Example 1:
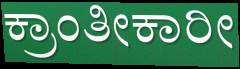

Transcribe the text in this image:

ಕ್ರಾಂತೀಕಾರೀ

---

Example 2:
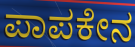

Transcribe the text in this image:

ಪಾಪಕೇನ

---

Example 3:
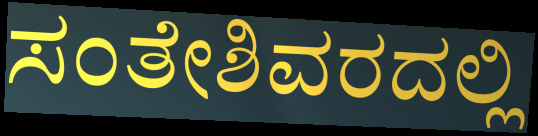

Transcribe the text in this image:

ಸಂತೇಶಿವರದಲ್ಲಿ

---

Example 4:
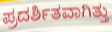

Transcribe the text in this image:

ಪ್ರದರ್ಶಿತವಾಗಿತ್ತು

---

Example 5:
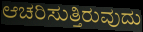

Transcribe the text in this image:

ಆಚರಿಸುತ್ತಿರುವುದು